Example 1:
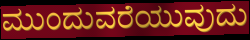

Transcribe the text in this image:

ಮುಂದುವರೆಯುವುದು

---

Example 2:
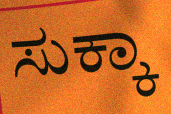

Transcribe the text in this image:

ಸುಕ್ಕಾ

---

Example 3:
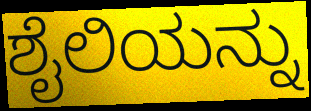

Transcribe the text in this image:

ಶೈಲಿಯನ್ನು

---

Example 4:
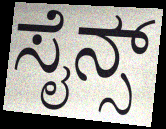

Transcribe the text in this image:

ಸೈನ್ಸ್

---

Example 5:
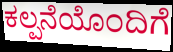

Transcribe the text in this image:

ಕಲ್ಪನೆಯೊಂದಿಗೆ